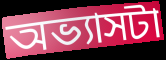
অভ্যাসটা